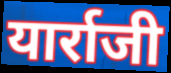
यार्राजी